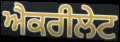
ਐਕਰੀਲੇਟ